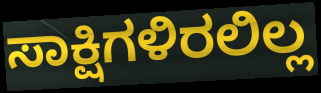
ಸಾಕ್ಷಿಗಳಿರಲಿಲ್ಲ